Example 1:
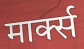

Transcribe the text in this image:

मार्क्‍स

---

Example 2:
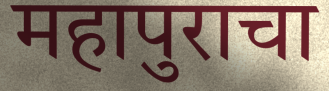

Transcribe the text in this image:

महापुराचा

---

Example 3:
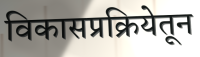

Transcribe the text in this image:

विकासप्रक्रियेतून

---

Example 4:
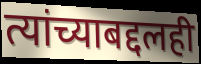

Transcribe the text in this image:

त्यांच्याबद्दलही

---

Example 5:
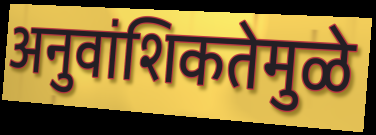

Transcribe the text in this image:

अनुवांशिकतेमुळे